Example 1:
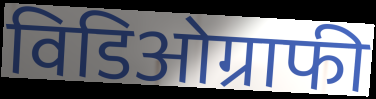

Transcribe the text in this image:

विडिओग्राफी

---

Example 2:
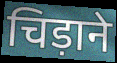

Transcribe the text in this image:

चिड़ाने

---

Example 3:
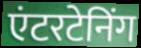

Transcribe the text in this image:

एंटरटेनिंग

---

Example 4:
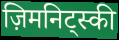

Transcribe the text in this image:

ज़िमनिट्स्की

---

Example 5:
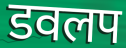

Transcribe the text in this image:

डवलप